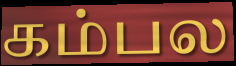
கம்பல